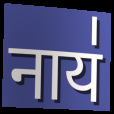
नाय॑